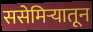
ससेमिऱ्यातून